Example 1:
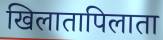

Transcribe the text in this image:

खिलातापिलाता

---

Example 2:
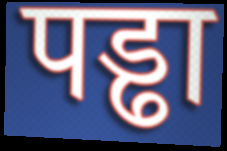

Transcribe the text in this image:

पड्ढा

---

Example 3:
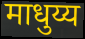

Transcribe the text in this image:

माधुय्य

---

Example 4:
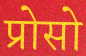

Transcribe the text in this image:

प्रोसो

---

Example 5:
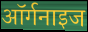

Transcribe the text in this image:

ऑर्गनाइज